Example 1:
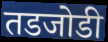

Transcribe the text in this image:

तडजोडी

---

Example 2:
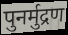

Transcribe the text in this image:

पुनर्मुद्रण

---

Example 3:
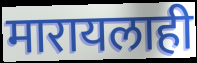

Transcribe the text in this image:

मारायलाही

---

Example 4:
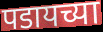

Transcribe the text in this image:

पडायच्या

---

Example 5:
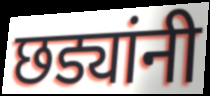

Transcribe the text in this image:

छड्यांनी